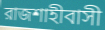
রাজশাহীবাসী